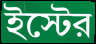
ইস্টের